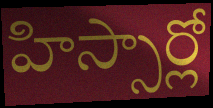
హిస్సార్లో